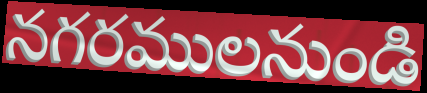
నగరములనుండి